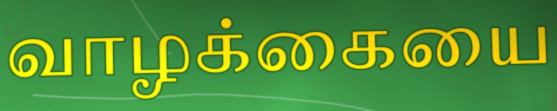
வாழக்கையை